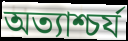
অত্যাশ্চর্য